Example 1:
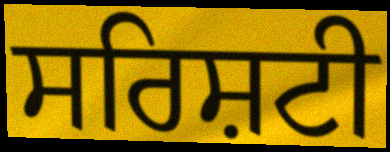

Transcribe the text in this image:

ਸਰਿਸ਼ਟੀ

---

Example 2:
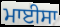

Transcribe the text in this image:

ਮਾਈਸਾ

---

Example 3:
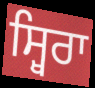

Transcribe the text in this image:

ਸ੍ਥਿਰਾ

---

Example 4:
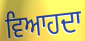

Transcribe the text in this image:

ਵਿਆਹਦਾ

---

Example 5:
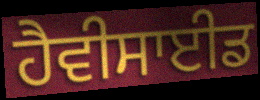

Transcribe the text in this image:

ਹੈਵੀਸਾਈਡ